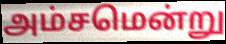
அம்சமென்று